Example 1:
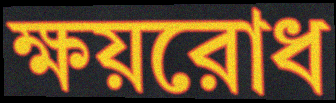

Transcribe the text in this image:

ক্ষয়রোধ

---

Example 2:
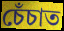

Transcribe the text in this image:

চেঁচাত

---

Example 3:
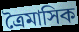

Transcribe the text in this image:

ত্রৈমাসিক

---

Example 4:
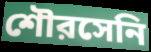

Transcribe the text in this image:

শৌরসেনি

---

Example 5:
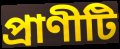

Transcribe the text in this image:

প্রাণীটি